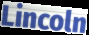
Lincoln